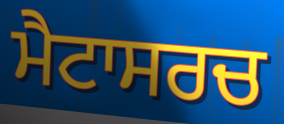
ਮੈਟਾਸਰਚ